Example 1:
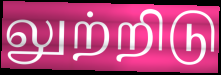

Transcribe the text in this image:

லுற்றிடு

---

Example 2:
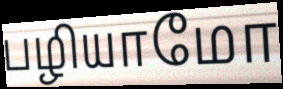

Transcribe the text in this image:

பழியாமோ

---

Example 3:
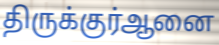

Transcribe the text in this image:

திருக்குர்ஆனை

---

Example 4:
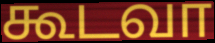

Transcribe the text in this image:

கூடவா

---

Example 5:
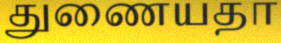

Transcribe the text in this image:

துணையதா